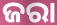
ଜରା